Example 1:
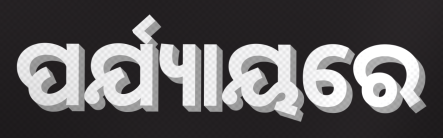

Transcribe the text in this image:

ପର୍ଯ୍ୟାୟରେ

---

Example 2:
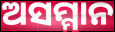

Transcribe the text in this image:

ଅସମ୍ମାନ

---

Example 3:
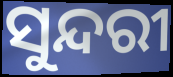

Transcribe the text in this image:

ସୁନ୍ଦରୀ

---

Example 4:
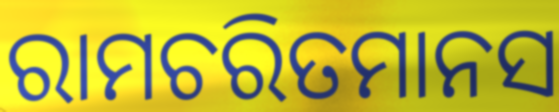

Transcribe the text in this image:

ରାମଚରିତମାନସ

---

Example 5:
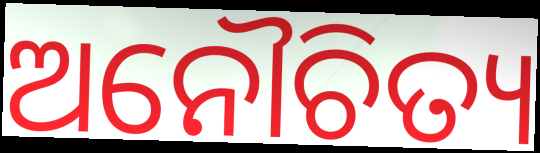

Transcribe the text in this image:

ଅନୌଚିତ୍ୟ